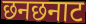
छनछनाट